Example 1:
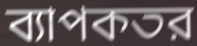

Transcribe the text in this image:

ব্যাপকতর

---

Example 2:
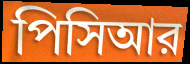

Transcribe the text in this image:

পিসিআর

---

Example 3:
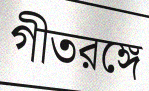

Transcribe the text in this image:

গীতরঙ্গে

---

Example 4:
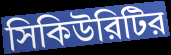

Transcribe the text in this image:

সিকিউরিটির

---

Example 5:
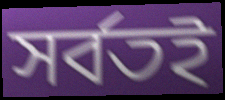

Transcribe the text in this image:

সর্বতই